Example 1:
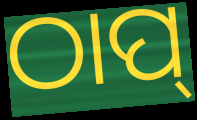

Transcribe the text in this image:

ଠାପ୍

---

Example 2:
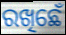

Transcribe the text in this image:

ରଖିଛେଁ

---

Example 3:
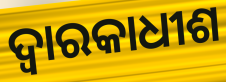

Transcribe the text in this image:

ଦ୍ୱାରକାଧୀଶ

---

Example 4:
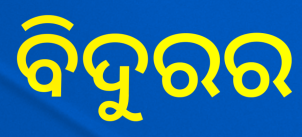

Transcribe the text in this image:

ବିଦୁରର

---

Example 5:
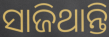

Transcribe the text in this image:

ସାଜିଥାନ୍ତି